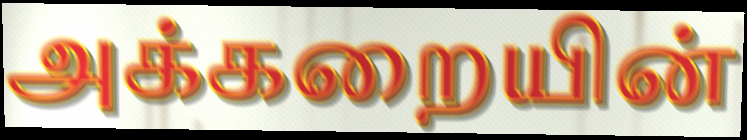
அக்கறையின்